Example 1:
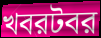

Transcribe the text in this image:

খবরটবর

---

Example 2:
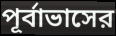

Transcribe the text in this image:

পূর্বাভাসের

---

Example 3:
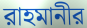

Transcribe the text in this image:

রাহমানীর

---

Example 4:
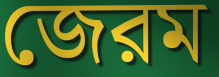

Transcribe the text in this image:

জেরম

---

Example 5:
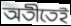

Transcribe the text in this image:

অতীতেই